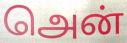
அென்